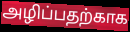
அழிப்பதற்காக